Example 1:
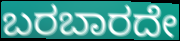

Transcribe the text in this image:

ಬರಬಾರದೇ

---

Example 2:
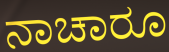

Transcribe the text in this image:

ನಾಚಾರೂ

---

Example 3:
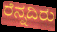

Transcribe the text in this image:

ರೆನ್ನದಿರು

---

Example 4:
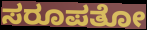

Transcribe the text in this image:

ಸರೂಪತೋ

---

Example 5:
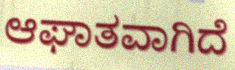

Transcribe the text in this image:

ಆಘಾತವಾಗಿದೆ